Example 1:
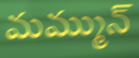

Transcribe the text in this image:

మమ్మున్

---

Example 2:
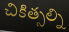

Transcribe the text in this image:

చికిత్సల్ని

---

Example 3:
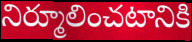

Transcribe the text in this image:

నిర్మూలించటానికి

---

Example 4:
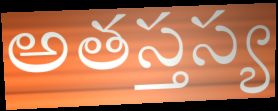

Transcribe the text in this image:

అతస్తస్య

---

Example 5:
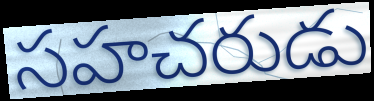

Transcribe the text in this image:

సహచరుడు